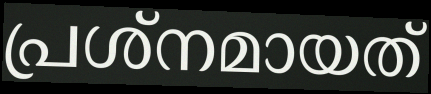
പ്രശ്നമായത്